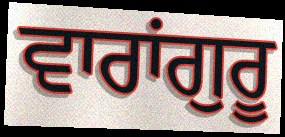
ਵਾਰਾਂਗੁਰੂ